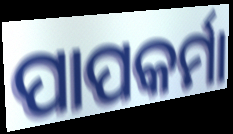
ପାପକର୍ମା